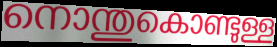
നൊന്തുകൊണ്ടുള്ള